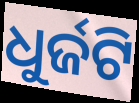
ଧୁର୍ଜଟି